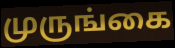
முருங்கை